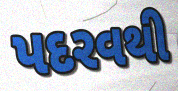
પદરવથી